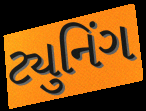
ટ્યુનિંગ